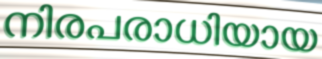
നിരപരാധിയായ